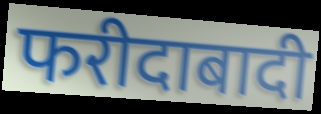
फरीदाबादी